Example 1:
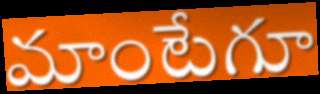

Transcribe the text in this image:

మాంటేగూ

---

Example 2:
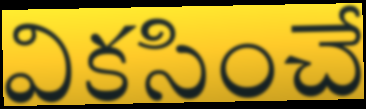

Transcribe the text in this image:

వికసించే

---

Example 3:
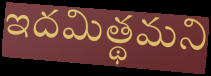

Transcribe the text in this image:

ఇదమిత్థమని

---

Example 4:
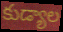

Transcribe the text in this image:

కుడ్యాల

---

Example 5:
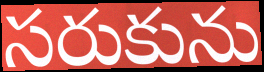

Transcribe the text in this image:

సరుకును